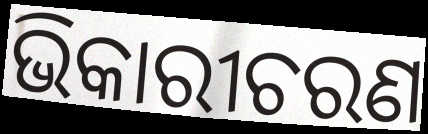
ଭିକାରୀଚରଣ